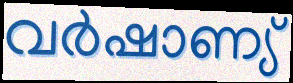
വർഷാണ്യ്